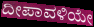
ದೀಪಾವಳಿಯೇ